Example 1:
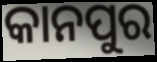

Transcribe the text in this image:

କାନପୁର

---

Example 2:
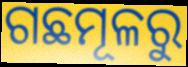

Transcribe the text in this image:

ଗଛମୂଳରୁ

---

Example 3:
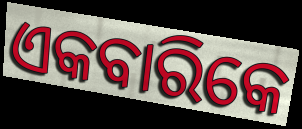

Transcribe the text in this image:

ଏକବାରିକେ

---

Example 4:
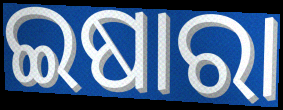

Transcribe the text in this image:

ଇଷାରା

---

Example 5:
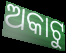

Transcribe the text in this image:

ଅକାଟୁ